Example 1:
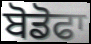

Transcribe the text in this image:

ਬੋਡੋਫਾ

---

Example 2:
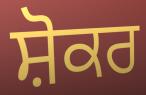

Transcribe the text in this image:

ਸ਼ੋਕਰ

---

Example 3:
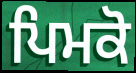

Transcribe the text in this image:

ਪਿਮਕੋ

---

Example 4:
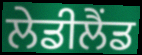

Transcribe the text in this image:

ਲੇਡੀਲੈਂਡ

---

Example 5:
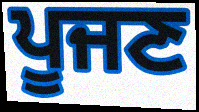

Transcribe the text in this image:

ਪੂਜਣ